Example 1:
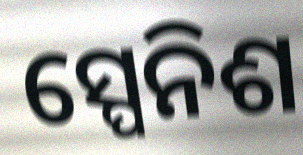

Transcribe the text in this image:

ସ୍ପେନିଶ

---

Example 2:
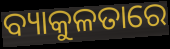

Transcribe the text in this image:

ବ୍ୟାକୁଳତାରେ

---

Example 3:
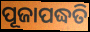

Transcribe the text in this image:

ପୂଜାପଦ୍ଧତି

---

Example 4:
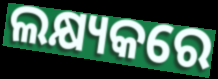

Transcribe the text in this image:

ଲକ୍ଷ୍ୟକରେ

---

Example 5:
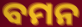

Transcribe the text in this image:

ବମନ